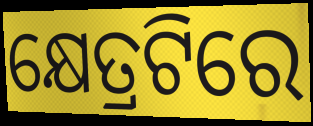
କ୍ଷେତ୍ରଟିରେ